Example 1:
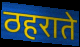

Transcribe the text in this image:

ठहराते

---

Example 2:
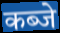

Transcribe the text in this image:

कब्‍जे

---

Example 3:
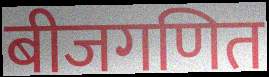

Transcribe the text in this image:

बीजगणित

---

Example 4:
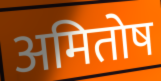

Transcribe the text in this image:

अमितोष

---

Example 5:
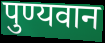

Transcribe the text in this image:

पुण्यवान